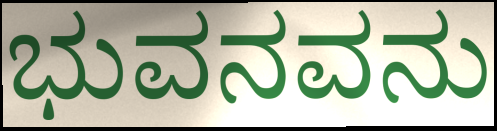
ಭುವನವನು